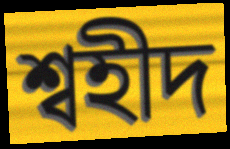
শ্বহীদ